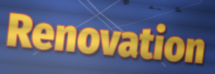
Renovation